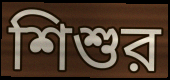
শিশুর